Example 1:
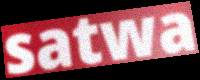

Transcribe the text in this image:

satwa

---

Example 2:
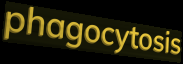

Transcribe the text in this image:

phagocytosis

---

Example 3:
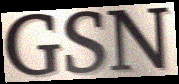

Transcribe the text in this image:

GSN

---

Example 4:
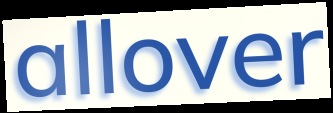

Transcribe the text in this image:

allover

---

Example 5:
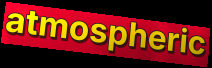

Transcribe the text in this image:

atmospheric